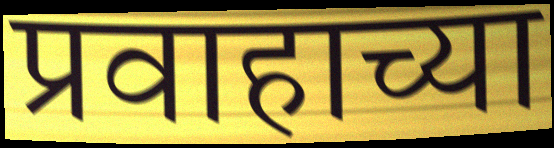
प्रवाहाच्या